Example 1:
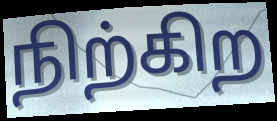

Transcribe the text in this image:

நிற்கிற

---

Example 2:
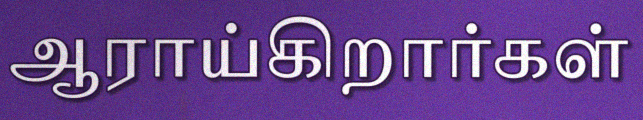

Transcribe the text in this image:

ஆராய்கிறார்கள்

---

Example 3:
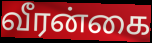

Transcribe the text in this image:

வீரன்கை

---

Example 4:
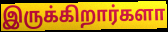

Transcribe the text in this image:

இருக்கிறார்களா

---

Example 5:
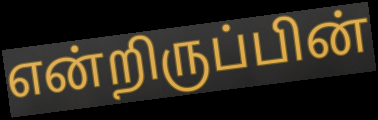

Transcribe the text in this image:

என்றிருப்பின்